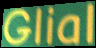
Glial